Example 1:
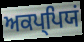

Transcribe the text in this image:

ਅਕਪ੍ਪਿਯਂ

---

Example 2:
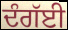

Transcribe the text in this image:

ਦੰਗੱਈ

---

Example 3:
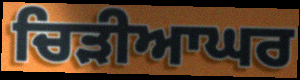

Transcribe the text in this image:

ਚਿੜੀਆਘਰ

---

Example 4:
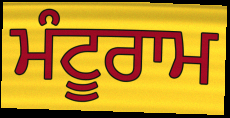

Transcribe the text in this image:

ਮੰਟੂਰਾਮ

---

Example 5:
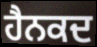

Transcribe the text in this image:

ਹੈਨਕਦ